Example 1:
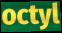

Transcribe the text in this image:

octyl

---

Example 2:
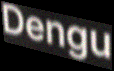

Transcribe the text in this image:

Dengu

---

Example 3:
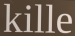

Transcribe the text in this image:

kille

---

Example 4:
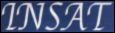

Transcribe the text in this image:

INSAT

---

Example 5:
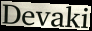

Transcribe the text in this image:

Devaki